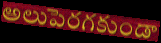
అలుపెరగకుండా